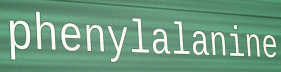
phenylalanine